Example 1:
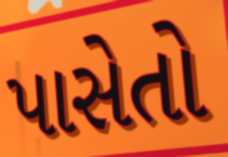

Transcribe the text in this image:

પાસેતો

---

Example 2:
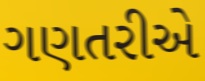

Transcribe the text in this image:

ગણતરીએ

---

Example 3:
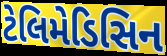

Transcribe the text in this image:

ટેલિમેડિસિન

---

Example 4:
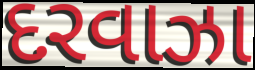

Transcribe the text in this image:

દરવાઝા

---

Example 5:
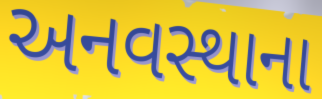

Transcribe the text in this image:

અનવસ્થાના